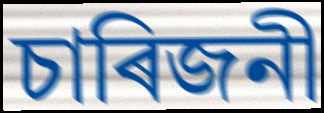
চাৰিজনী